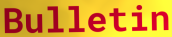
Bulletin